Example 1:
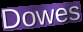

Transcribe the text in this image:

Dowes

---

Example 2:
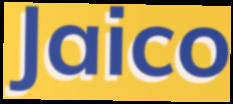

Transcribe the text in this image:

Jaico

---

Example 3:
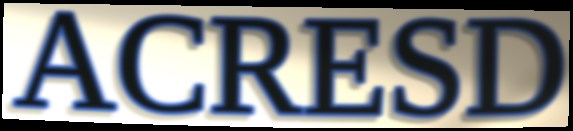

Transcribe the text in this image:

ACRESD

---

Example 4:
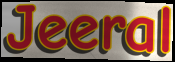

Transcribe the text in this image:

Jeeral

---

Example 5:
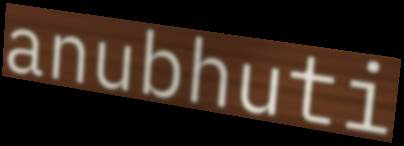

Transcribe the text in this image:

anubhuti